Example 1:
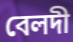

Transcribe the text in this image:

বেলদী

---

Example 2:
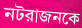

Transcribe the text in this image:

নটরাজনকে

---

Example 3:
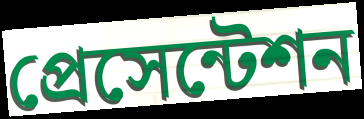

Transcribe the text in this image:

প্রেসেন্টেশন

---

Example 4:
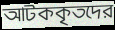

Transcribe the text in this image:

আটককৃতদের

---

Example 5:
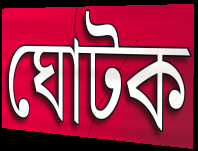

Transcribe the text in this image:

ঘোটক